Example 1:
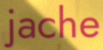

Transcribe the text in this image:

jache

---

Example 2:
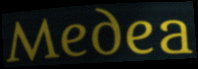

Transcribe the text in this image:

Medea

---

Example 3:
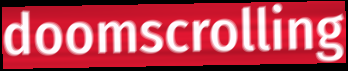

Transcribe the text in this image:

doomscrolling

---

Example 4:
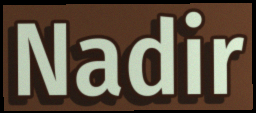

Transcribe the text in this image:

Nadir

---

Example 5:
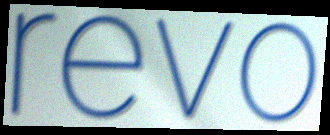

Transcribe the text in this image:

revo